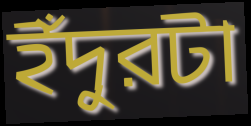
ইঁদুরটা